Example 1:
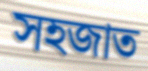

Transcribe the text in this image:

সহজাত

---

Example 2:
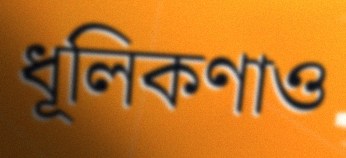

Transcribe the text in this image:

ধূলিকণাও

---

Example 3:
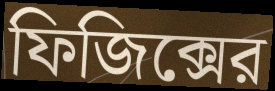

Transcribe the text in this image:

ফিজিক্সের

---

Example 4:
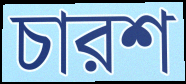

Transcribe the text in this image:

চারশ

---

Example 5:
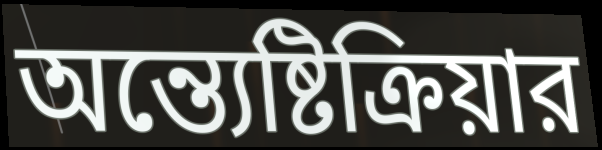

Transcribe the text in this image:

অন্ত্যেষ্টিক্রিয়ার